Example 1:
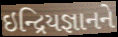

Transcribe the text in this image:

ઇન્દ્રિયજ્ઞાનને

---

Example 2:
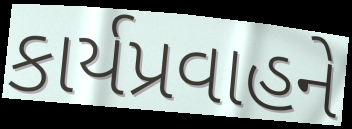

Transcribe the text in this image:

કાર્યપ્રવાહને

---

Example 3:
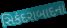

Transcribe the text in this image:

સિકંદરાબાદના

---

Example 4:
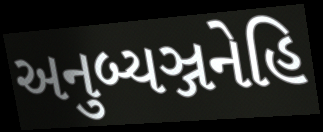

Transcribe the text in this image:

અનુબ્યઞ્જનેહિ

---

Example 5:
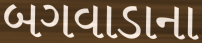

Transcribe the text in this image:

બગવાડાના